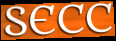
SECC